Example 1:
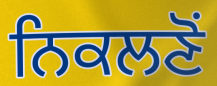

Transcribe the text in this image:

ਨਿਕਲਣੋਂ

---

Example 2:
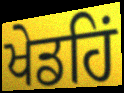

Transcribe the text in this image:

ਖੇਡਹਿਂ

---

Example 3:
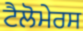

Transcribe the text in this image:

ਟੈਲੋਮੇਰਸ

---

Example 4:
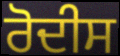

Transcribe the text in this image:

ਰੋਦੀਸ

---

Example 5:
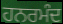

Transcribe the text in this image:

ਹਨਰਮੰਦ